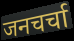
जनचर्चा